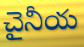
చైనీయ